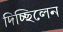
দিচ্ছিলেন